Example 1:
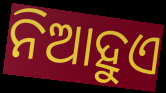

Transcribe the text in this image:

ନିଆହୁଏ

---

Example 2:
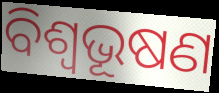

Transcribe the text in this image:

ବିଶ୍ବଭୂଷଣ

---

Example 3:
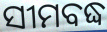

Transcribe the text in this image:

ସୀମବଦ୍ଧ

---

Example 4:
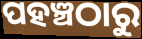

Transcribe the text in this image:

ପହଞ୍ଚଠାରୁ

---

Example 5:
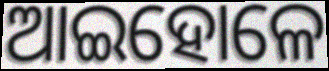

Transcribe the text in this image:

ଆଇହୋଳେ